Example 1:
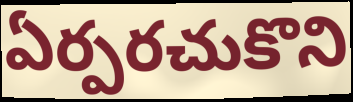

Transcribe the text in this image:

ఏర్పరచుకొని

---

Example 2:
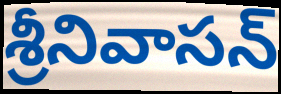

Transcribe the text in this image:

శ్రీనివాసన్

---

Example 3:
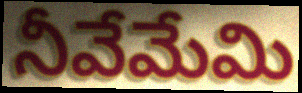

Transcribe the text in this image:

నీవేమేమి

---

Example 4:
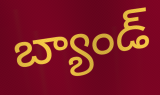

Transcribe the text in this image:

బ్యాండ్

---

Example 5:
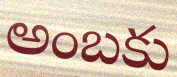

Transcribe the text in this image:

అంబకు